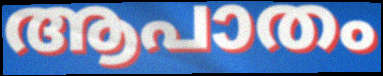
ആപാതം